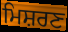
ਮਿਸ਼ਰਣ